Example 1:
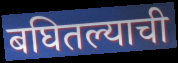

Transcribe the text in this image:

बघितल्याची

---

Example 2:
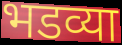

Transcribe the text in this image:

भडव्या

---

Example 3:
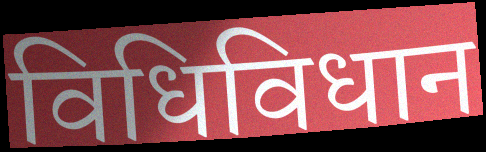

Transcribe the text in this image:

विधिविधान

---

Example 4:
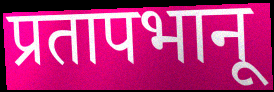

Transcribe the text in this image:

प्रतापभानू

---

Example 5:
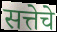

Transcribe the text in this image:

सत्तेचे